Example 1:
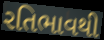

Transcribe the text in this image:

રતિભાવથી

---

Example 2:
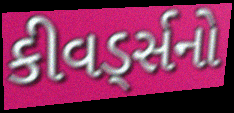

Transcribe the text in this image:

કીવર્ડ્સનો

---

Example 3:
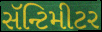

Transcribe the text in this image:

સૅન્ટિમીટર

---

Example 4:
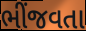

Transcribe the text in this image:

ભીંજવતા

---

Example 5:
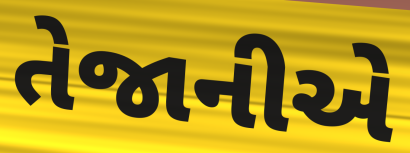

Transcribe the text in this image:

તેજાનીએ